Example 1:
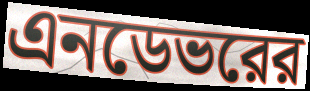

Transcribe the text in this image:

এনডেভরের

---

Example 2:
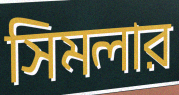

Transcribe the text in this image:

সিমলার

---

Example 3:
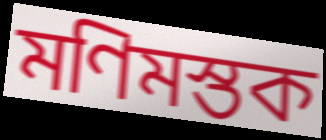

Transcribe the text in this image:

মণিমস্তক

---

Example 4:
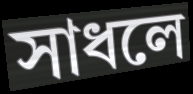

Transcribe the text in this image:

সাধলে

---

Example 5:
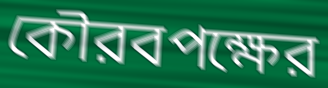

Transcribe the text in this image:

কৌরবপক্ষের